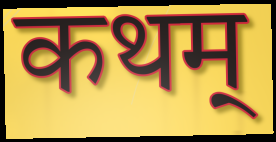
कथम्